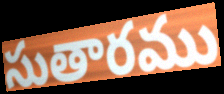
సుతారము